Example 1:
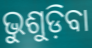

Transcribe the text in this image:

ଭୁଶୁଡ଼ିବା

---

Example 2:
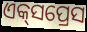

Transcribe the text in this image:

ଏକ୍‌ସପ୍ରେସ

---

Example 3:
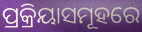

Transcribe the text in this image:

ପ୍ରକ୍ରିୟାସମୂହରେ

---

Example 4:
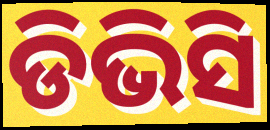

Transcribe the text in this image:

ଡିଭିସି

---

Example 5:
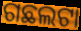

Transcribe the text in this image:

ଗଛଲଟା